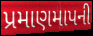
પ્રમાણમાપની